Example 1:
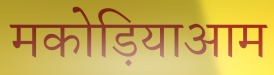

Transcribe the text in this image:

मकोड़ियाआम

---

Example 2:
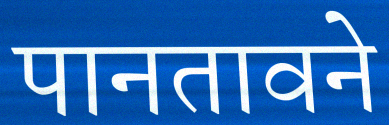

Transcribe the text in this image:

पानतावने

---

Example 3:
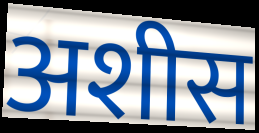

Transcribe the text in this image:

अशीस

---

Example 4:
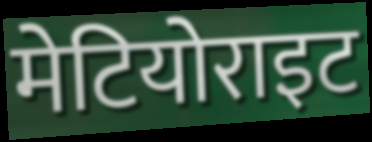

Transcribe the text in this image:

मेटियोराइट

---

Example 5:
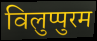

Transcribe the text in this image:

विलुप्पुरम